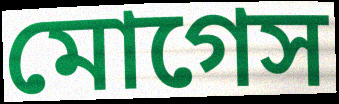
মোগেস